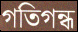
গতিগন্ধ